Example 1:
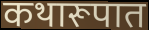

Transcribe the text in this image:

कथारूपात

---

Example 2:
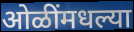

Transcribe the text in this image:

ओळींमधल्या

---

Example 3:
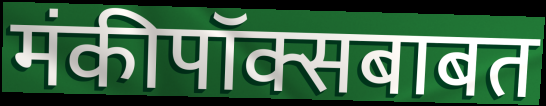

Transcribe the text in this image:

मंकीपॉक्सबाबत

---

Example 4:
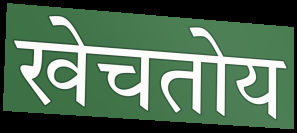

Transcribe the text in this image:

खेचतोय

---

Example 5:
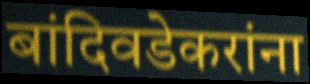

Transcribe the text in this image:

बांदिवडेकरांना